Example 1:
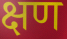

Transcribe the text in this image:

क्षण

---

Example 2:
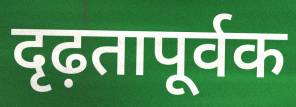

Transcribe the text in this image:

दृढ़तापूर्वक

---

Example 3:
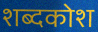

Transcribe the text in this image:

शब्दकोश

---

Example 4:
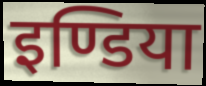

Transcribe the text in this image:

इण्डिया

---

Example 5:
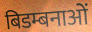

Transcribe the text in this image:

बिडम्बनाओं